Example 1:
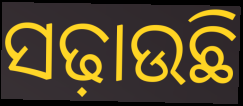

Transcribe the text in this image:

ସଢ଼ାଉଛି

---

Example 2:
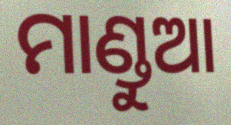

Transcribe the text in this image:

ମାଣ୍ଡୁଆ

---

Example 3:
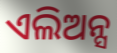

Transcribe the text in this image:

ଏଲିଅନ୍ସ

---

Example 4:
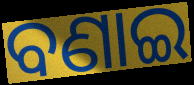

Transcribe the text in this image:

ବଣାଇ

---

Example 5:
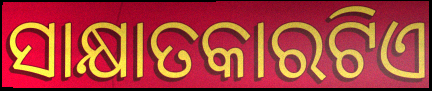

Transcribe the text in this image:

ସାକ୍ଷାତକାରଟିଏ